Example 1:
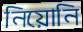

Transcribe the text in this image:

নিয়োনি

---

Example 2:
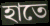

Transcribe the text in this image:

হাতে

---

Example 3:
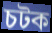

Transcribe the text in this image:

চটক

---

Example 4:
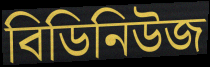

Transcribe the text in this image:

বিডিনিউজ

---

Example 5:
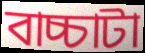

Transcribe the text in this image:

বাচ্চাটা